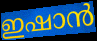
ഇഷാൻ